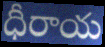
ధీరాయ